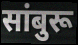
सांबुरू